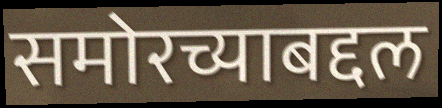
समोरच्याबद्दल